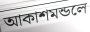
আকাশমন্ডলে